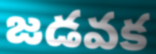
జడవక